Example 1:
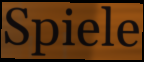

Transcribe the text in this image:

Spiele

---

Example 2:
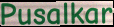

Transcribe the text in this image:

Pusalkar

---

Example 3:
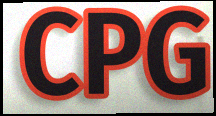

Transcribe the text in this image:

CPG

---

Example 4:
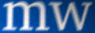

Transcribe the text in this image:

mw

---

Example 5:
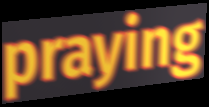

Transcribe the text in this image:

praying